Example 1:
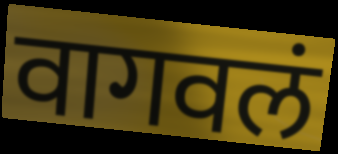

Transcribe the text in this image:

वागवलं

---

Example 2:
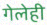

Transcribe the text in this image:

गेलेही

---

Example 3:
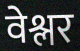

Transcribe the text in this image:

वेश्लर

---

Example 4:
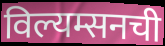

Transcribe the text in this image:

विल्यम्सनची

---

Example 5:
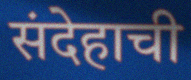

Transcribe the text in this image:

संदेहाची